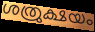
ശത്രുക്ഷയം